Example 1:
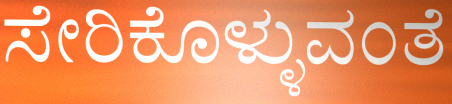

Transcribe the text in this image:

ಸೇರಿಕೊಳ್ಳುವಂತೆ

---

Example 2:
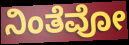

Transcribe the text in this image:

ನಿಂತೆವೋ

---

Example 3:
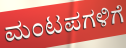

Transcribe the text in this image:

ಮಂಟಪಗಳಿಗೆ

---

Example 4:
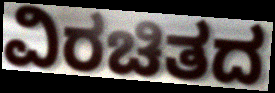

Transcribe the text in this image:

ವಿರಚಿತದ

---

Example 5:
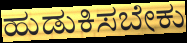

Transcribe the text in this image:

ಹುಡುಕಿಸಬೇಕು